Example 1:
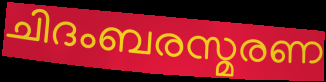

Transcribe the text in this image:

ചിദംബരസ്മരണ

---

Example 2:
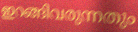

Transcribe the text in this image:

ഇറങ്ങിവരുന്നതും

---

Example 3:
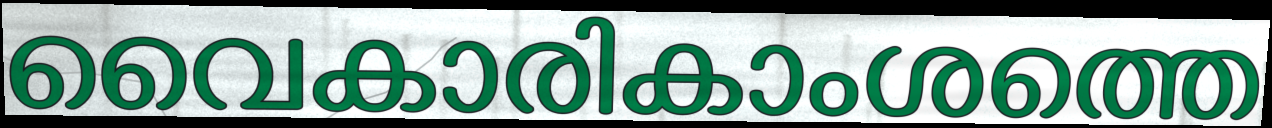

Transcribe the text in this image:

വൈകാരികാംശത്തെ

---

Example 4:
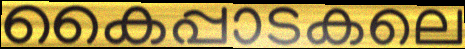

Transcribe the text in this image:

കൈപ്പാടകലെ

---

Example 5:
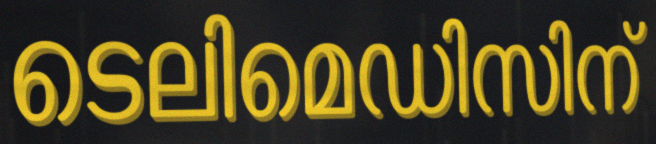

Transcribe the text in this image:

ടെലിമെഡിസിന്